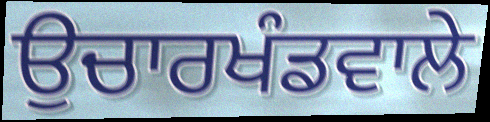
ਉਚਾਰਖੰਡਵਾਲੇ